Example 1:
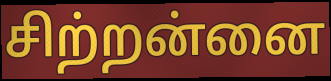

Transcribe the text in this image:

சிற்றன்னை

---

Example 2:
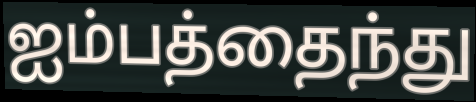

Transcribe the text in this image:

ஐம்பத்தைந்து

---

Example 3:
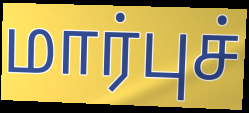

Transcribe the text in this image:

மார்புச்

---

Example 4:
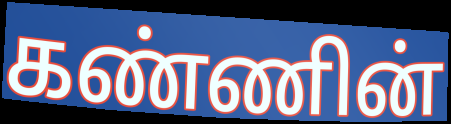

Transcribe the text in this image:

கண்ணின்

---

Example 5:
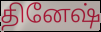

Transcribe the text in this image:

தினேஷ்